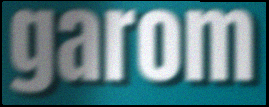
garom